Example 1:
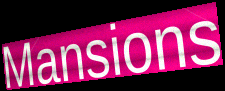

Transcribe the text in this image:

Mansions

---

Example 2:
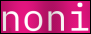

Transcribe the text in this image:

noni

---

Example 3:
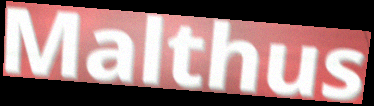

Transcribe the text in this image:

Malthus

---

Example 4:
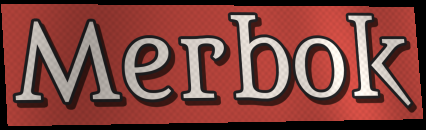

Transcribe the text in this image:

Merbok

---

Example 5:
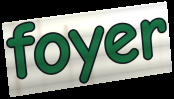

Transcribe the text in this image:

foyer